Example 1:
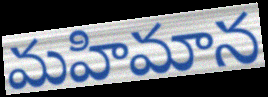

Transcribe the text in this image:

మహిమాన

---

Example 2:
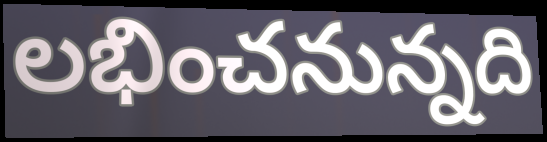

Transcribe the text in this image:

లభించనున్నది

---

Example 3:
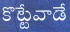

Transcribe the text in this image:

కొట్టేవాడే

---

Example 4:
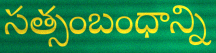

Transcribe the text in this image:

సత్సంబంధాన్ని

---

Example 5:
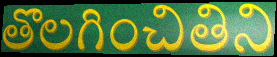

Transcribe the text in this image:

తొలగించితిని